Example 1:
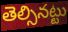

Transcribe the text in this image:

తెల్సినట్టు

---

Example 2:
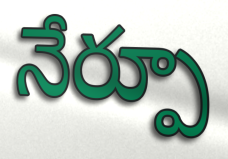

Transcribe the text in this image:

నేర్పూ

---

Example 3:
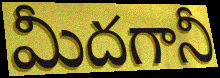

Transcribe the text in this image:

మీదగానీ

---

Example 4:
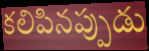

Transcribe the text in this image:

కలిపినప్పుడు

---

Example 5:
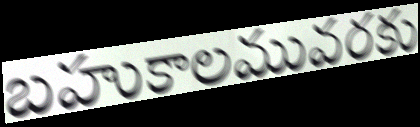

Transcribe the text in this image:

బహుకాలమువరకు